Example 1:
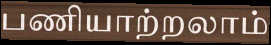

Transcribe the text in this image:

பணியாற்றலாம்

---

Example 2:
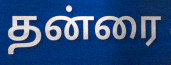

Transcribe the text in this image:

தன்ரை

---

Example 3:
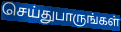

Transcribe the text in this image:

செய்துபாருங்கள்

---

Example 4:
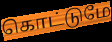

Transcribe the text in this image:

கொட்டுமே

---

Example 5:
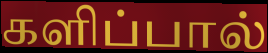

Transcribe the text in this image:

களிப்பால்